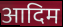
आदिम